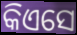
କିଏସେ